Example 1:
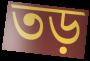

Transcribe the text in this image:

তড়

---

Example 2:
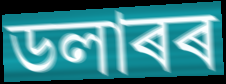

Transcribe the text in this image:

ডলাৰৰ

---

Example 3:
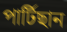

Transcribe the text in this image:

পাৰ্টিছান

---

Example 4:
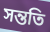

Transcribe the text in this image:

সন্ততি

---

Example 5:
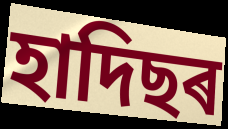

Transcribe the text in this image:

হাদিছৰ